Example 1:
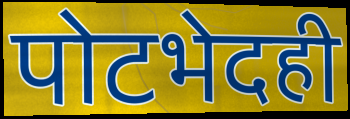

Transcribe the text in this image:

पोटभेदही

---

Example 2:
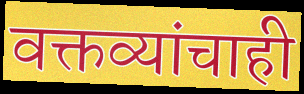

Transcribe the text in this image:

वक्तव्यांचाही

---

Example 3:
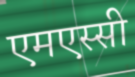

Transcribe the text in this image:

एमएस्सी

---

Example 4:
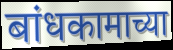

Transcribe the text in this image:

बांधकामाच्या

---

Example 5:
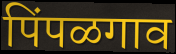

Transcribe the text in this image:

पिंपळगाव